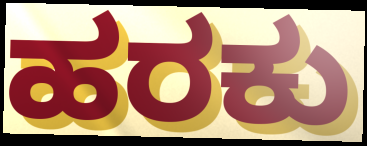
ಹರಕು